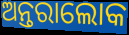
ଅନ୍ତରାଲୋକ